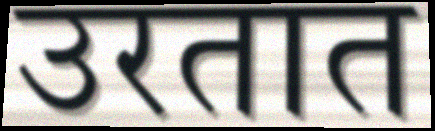
उरतात